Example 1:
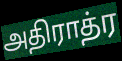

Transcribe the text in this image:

அதிராத்ர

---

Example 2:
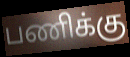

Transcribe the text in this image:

பணிக்கு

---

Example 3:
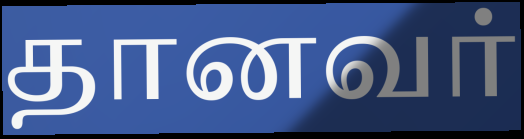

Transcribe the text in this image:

தானவர்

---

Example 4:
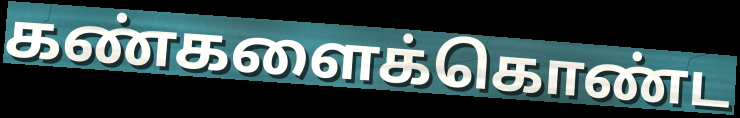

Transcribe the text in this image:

கண்களைக்கொண்ட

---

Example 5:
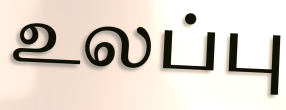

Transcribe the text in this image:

உலப்பு